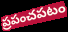
ప్రపంచపటం